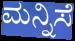
ಮನ್ನಿಸೆ